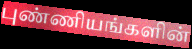
புண்ணியங்களின்